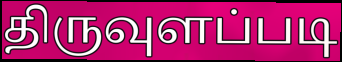
திருவுளப்படி